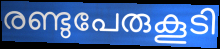
രണ്ടുപേരുകൂടി